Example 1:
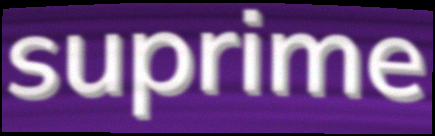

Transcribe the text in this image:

suprime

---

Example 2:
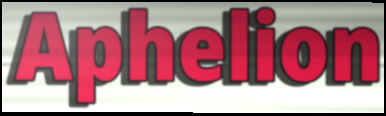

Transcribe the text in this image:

Aphelion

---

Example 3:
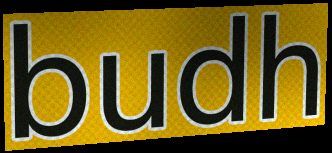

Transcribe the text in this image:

budh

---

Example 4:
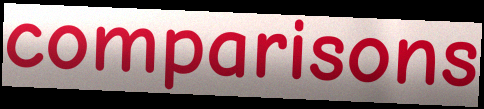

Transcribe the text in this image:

comparisons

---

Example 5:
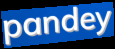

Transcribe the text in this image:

pandey